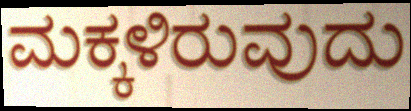
ಮಕ್ಕಳಿರುವುದು